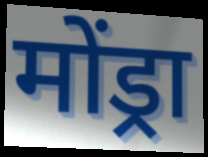
मोंड्रा